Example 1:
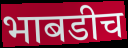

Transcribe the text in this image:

भाबडीच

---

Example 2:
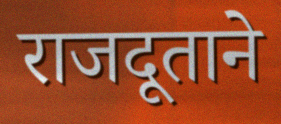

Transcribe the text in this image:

राजदूताने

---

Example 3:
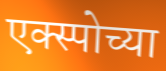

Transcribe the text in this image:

एक्स्पोच्या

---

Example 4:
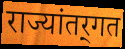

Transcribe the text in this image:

राज्यांतर्गत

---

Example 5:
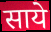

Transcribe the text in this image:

साये